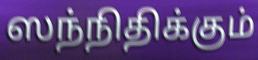
ஸந்நிதிக்கும்